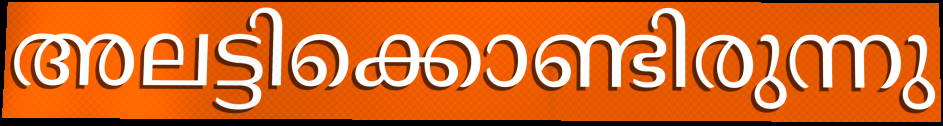
അലട്ടിക്കൊണ്ടിരുന്നു